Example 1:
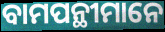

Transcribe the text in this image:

ବାମପନ୍ଥୀମାନେ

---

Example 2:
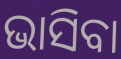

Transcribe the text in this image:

ଭାସିବା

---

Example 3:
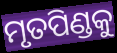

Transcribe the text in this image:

ମୃତପିଣ୍ଡକୁ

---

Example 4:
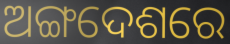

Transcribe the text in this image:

ଅଙ୍ଗଦେଶରେ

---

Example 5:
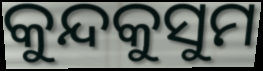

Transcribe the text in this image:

କୁନ୍ଦକୁସୁମ